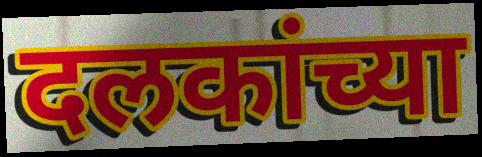
दलकांच्या